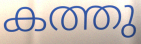
കത്തു